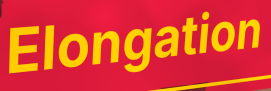
Elongation